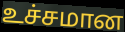
உச்சமான